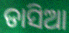
ଡାସିଆ